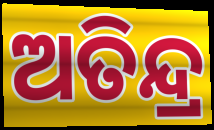
ଅତିନ୍ଦ୍ର